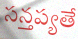
సన్తప్యతే